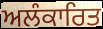
ਅਲੰਕਾਰਿਤ